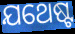
ଯଥେଷ୍ଟ